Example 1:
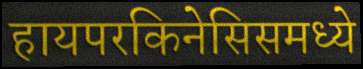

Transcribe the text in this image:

हायपरकिनेसिसमध्ये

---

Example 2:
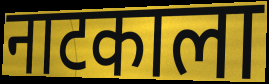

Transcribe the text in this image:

नाटकाला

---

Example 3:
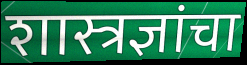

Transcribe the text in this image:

शास्त्रज्ञांचा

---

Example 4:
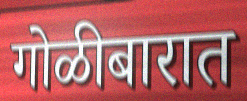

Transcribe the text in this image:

गोळीबारात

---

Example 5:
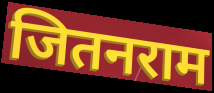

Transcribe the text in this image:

जितनराम